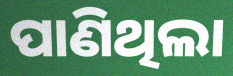
ପାଣିଥିଲା